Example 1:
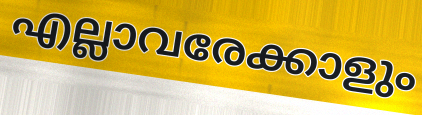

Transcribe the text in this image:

എല്ലാവരേക്കാളും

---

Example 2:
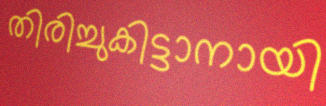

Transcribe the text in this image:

തിരിച്ചുകിട്ടാനായി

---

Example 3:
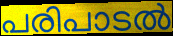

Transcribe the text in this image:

പരിപാടൽ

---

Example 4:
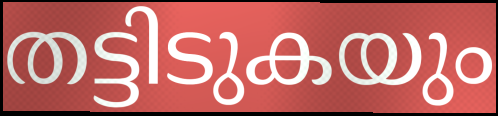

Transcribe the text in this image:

തട്ടിടുകയും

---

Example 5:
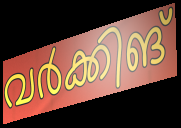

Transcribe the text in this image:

വർക്കിങ്